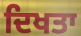
ਦਿਖਤਾ